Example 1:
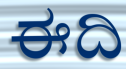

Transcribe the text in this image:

ಈದಿ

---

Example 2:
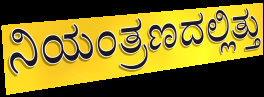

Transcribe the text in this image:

ನಿಯಂತ್ರಣದಲ್ಲಿತ್ತು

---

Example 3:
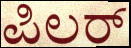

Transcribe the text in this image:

ಪಿಲರ್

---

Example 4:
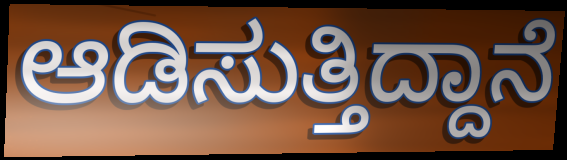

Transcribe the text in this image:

ಆಡಿಸುತ್ತಿದ್ದಾನೆ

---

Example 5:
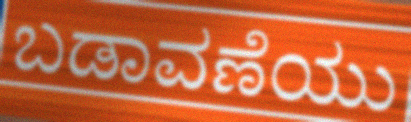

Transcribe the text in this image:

ಬಡಾವಣೆಯು